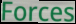
Forces